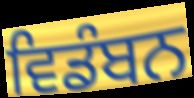
ਵਿਡੰਬਨ